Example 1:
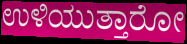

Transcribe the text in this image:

ಉಳಿಯುತ್ತಾರೋ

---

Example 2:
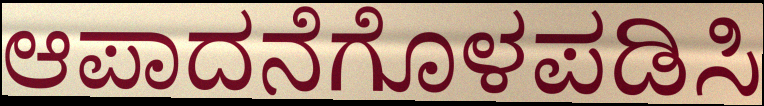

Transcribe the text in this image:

ಆಪಾದನೆಗೊಳಪಡಿಸಿ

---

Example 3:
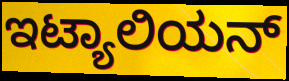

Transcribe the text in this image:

ಇಟ್ಯಾಲಿಯನ್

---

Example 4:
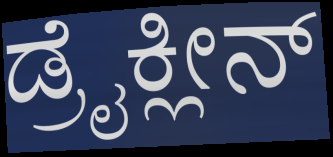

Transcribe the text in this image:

ಡ್ರೈಕ್ಲೀನ್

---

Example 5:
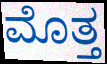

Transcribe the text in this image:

ಮೊತ್ತ